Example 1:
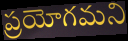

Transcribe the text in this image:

ప్రయోగమని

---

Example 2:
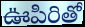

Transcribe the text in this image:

ఊపిరితో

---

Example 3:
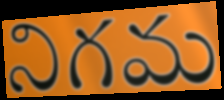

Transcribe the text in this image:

నిగమ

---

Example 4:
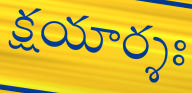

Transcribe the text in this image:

క్షయార్శః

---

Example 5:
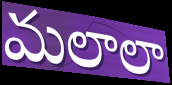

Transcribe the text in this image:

మలాలా